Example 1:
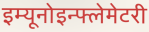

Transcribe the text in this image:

इम्यूनोइन्फ्लेमेटरी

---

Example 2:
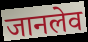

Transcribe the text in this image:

जानलेव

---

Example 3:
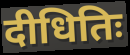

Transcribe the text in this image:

दीधितिः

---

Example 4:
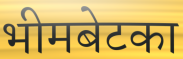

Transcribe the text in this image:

भीमबेटका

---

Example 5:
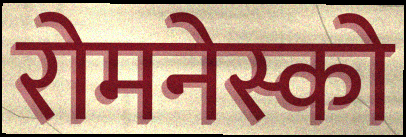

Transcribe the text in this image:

रोमनेस्को